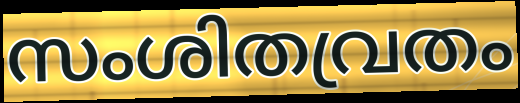
സംശിതവ്രതം